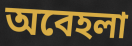
অবেহলা